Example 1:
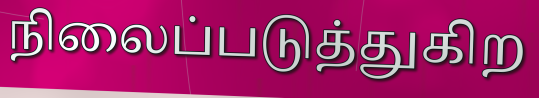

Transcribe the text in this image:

நிலைப்படுத்துகிற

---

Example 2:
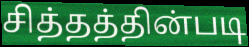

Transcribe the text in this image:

சித்தத்தின்படி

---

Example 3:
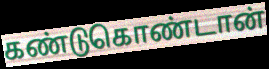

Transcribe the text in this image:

கண்டுகொண்டான்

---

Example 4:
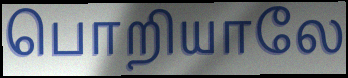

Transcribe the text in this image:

பொறியாலே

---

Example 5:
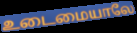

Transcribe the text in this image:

உடைமையாலே